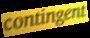
contingent